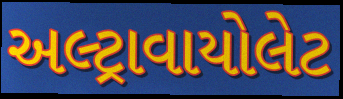
અલ્ટ્રાવાયોલેટ